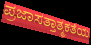
ಪ್ರಜಾಸತ್ತಾತ್ಮಕತೆಯ